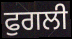
ਫੁਗਲੀ